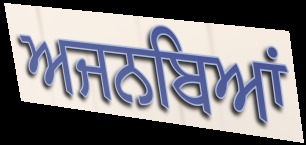
ਅਜਨਬਿਆਂ